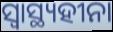
ସ୍ଵାସ୍ଥ୍ୟହୀନା